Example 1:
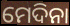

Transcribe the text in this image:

ମେଦିନା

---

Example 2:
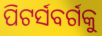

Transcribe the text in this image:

ପିଟର୍ସବର୍ଗକୁ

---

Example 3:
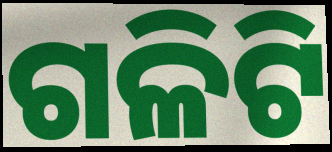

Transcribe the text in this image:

ଗଳିଟି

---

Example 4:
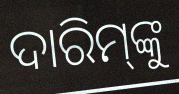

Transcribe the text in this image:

ଦାରିମ୍‍ଙ୍କୁ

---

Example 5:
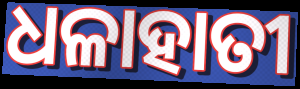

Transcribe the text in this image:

ଧଳାହାତୀ